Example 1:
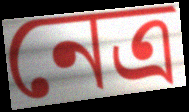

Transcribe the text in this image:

নেত্র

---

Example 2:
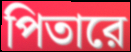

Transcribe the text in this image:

পিতারে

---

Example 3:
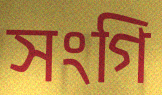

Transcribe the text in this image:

সংগি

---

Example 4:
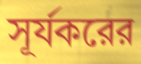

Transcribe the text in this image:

সূর্যকরের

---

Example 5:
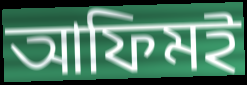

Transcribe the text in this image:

আফিমই